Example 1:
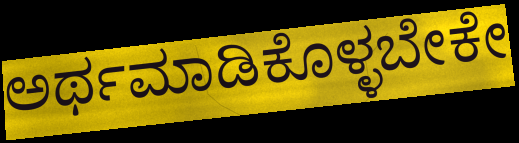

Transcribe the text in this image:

ಅರ್ಥಮಾಡಿಕೊಳ್ಳಬೇಕೇ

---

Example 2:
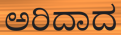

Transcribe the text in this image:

ಅರಿದಾದ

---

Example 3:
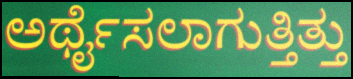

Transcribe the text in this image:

ಅರ್ಥೈಸಲಾಗುತ್ತಿತ್ತು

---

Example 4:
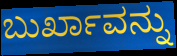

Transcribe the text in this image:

ಬುರ್ಖಾವನ್ನು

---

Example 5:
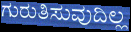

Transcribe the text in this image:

ಗುರುತಿಸುವುದಿಲ್ಲ